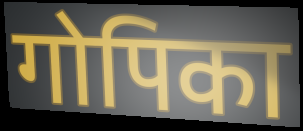
गोपिका